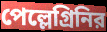
পেল্লেগ্রিনির